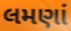
લમણાં